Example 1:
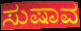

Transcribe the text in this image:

ಸುಷಾವ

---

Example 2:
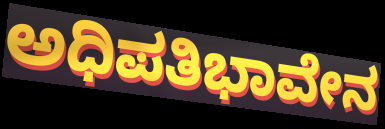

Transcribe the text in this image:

ಅಧಿಪತಿಭಾವೇನ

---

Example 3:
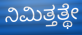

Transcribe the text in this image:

ನಿಮಿತ್ತತ್ಥೇ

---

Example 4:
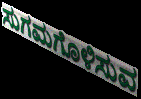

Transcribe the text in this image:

ಸುಗಮಗೊಳಿಸುವ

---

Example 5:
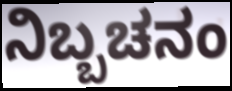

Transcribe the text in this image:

ನಿಬ್ಬಚನಂ